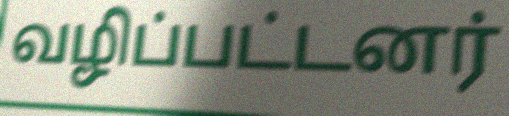
வழிப்பட்டனர்